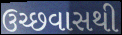
ઉચ્છવાસથી